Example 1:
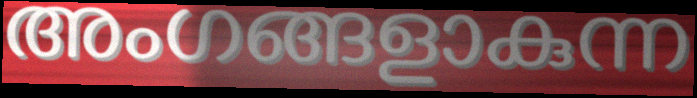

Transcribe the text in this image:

അംഗങ്ങളാകുന്ന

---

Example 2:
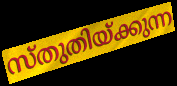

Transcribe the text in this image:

സ്തുതിയ്ക്കുന്ന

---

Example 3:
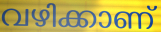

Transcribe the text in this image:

വഴിക്കാണ്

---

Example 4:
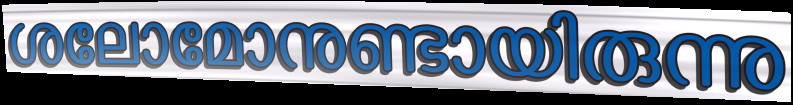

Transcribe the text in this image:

ശലോമോനുണ്ടായിരുന്നു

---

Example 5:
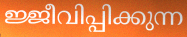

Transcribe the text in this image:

ജ്ജീവിപ്പിക്കുന്ന